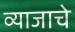
व्याजाचे